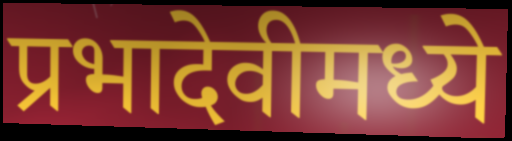
प्रभादेवीमध्ये